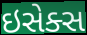
ઇસેક્સ